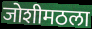
जोशीमठला